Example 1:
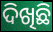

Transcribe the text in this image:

ଦିଖିଛି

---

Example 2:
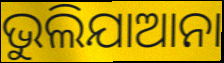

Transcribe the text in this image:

ଭୁଲିଯାଆନା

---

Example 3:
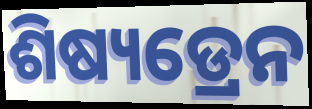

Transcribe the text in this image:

ଶିଷ୍ୟଡ୍ରେନ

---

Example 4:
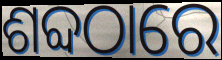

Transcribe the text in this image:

ଶବ୍ଦଠାରେ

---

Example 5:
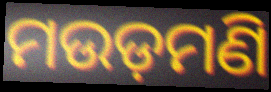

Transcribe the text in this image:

ମଉଡ଼ମଣି